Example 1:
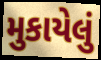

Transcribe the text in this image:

મુકાયેલું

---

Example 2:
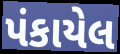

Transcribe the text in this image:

પંકાયેલ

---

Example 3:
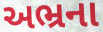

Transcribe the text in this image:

અભ્રના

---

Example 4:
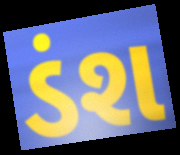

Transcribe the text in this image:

ડંશ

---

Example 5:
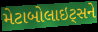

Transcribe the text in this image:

મેટાબોલાઇટ્સને